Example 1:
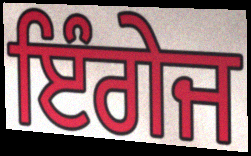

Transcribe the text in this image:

ਇੰਗੇਜ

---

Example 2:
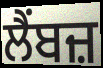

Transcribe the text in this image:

ਲੈਂਬਜ਼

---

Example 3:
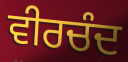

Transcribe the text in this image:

ਵੀਰਚੰਦ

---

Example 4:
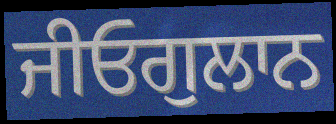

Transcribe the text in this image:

ਜੀਓਗੁਲਾਨ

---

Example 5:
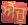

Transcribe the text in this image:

ਐਂਜੂ